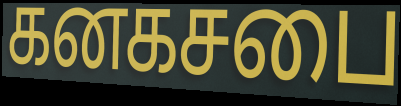
கனகசபை